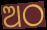
ଅଠ